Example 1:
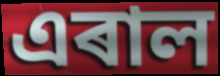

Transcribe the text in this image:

এৰাল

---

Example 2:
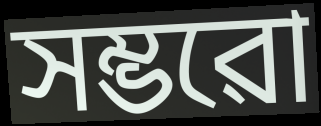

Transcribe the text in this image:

সম্ভৱো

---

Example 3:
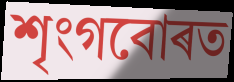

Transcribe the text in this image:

শৃংগবোৰত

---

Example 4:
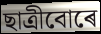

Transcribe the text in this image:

ছাত্ৰীবোৰে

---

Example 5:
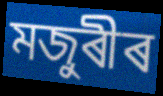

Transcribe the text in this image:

মজুৰীৰ